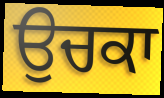
ਉਚਕਾ